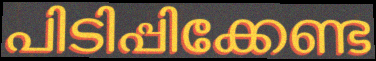
പിടിപ്പിക്കേണ്ട